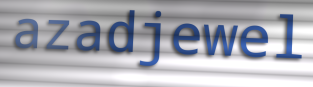
azadjewel